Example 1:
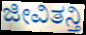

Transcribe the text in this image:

ಜೀವಿತನ್ತಿ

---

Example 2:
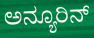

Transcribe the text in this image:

ಅನ್ಯೂರಿನ್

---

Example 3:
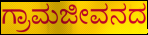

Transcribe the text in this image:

ಗ್ರಾಮಜೀವನದ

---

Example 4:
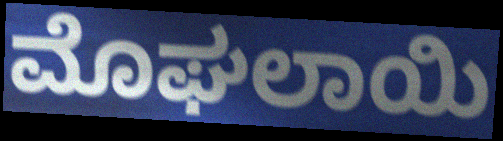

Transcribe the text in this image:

ಮೊಘಲಾಯಿ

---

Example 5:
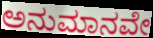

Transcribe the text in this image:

ಅನುಮಾನವೇ